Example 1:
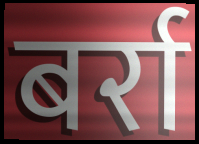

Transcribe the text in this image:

बर्रा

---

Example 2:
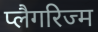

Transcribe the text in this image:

प्लैगरिज्म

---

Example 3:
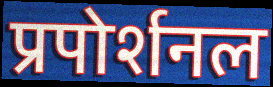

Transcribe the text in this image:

प्रपोर्शनल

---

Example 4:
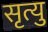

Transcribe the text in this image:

सृत्यु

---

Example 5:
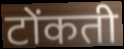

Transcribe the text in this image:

टोंकती